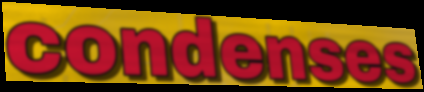
condenses